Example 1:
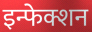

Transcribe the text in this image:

इन्फेक्शन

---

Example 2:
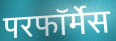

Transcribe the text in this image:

परफॉर्मेस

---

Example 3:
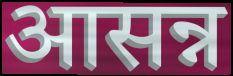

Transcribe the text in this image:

आसन्न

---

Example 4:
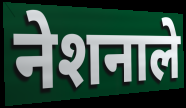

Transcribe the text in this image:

नेशनाले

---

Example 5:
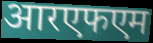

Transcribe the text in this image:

आरएफएम